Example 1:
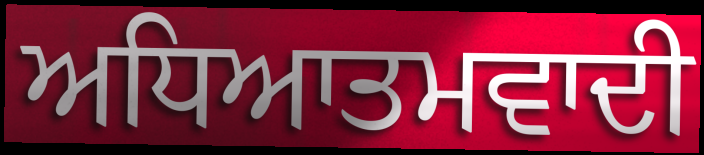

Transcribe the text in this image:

ਅਧਿਆਤਮਵਾਦੀ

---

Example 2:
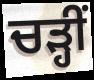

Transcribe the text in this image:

ਚੜ੍ਹੀਂ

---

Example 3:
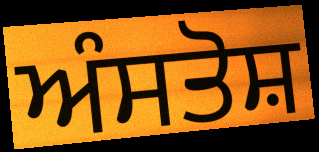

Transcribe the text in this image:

ਅੰਸਤੋਸ਼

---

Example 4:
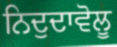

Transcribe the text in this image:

ਨਿਦੁਦਾਵੋਲੂ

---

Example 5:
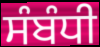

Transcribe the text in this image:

ਸੰਬੰਧੀ